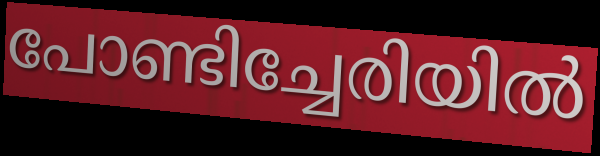
പോണ്ടിച്ചേരിയിൽ